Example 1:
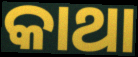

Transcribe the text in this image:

କାଥା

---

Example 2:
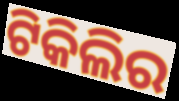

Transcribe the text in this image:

ଟିକିଲିର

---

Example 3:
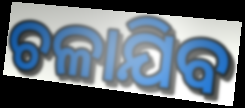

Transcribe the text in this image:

ଚଳାଯିବ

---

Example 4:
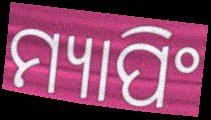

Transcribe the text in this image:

ମ୍ୟାପିଂ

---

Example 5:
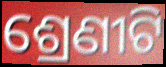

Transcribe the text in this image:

ଶ୍ରେଣୀଟି